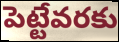
పెట్టేవరకు